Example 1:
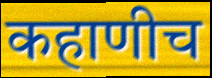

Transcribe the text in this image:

कहाणीच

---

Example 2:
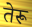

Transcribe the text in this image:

तेरू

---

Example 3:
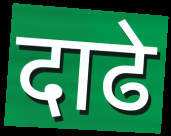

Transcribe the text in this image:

दाढे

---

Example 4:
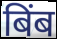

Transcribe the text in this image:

बिंब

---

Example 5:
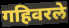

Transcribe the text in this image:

गहिवरले